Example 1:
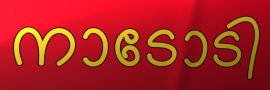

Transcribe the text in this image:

നാടോടി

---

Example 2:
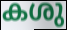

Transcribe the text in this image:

കശു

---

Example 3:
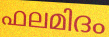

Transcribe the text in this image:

ഫലമിദം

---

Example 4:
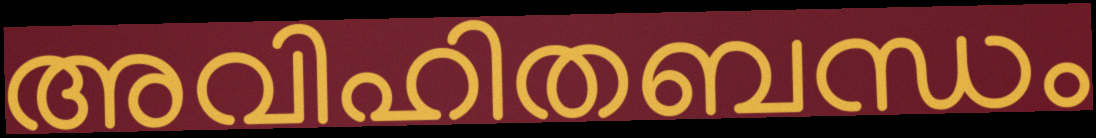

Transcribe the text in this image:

അവിഹിതബന്ധം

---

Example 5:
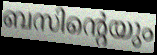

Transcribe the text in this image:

ബസിന്റെയും